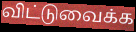
விட்டுவைக்க